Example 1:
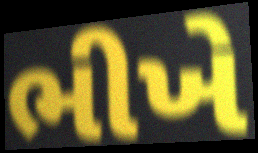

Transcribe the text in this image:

ભીખે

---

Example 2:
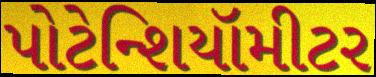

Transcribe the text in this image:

પોટેન્શિયૉમીટર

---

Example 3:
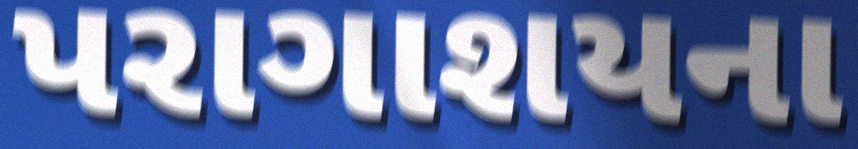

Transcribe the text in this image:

પરાગાશયના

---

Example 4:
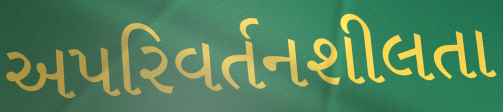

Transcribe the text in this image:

અપરિવર્તનશીલતા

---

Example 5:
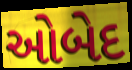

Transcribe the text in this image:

ઓબેદ